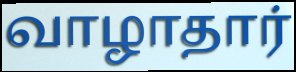
வாழாதார்